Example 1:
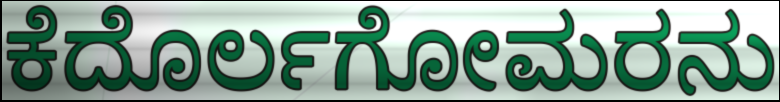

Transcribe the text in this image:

ಕೆದೊರ್ಲಗೋಮರನು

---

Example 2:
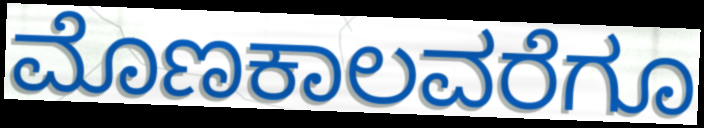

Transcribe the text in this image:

ಮೊಣಕಾಲವರೆಗೂ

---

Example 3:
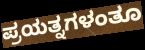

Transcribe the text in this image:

ಪ್ರಯತ್ನಗಳಂತೂ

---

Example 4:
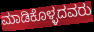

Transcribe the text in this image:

ಮಾಡಿಕೊಳ್ಳದವರು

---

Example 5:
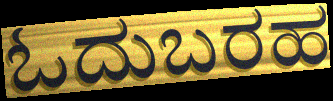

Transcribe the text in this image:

ಓದುಬರಹ